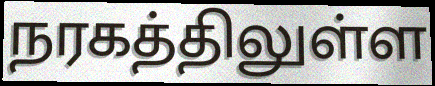
நரகத்திலுள்ள